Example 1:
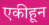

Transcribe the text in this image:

एकीहून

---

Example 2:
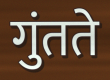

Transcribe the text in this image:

गुंतते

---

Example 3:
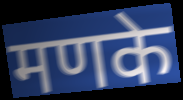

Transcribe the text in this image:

मणके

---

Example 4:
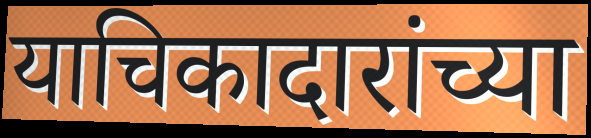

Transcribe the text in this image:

याचिकादारांच्या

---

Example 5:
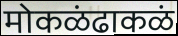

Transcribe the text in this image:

मोकळंढाकळं